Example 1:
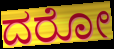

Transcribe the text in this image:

ದರೋ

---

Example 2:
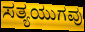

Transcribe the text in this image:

ಸತ್ಯಯುಗವು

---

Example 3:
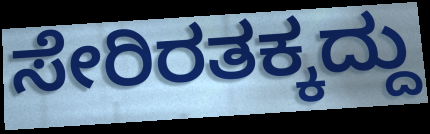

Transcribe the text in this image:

ಸೇರಿರತಕ್ಕದ್ದು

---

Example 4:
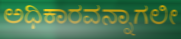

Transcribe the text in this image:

ಅಧಿಕಾರವನ್ನಾಗಲೀ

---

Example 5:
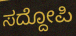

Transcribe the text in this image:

ಸದ್ದೋಪಿ